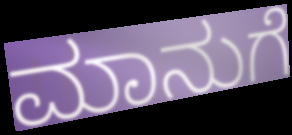
ಮಾನುಗೆ